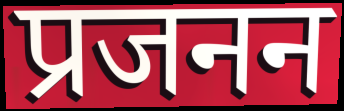
प्रजनन